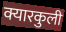
क्यारकुली